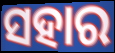
ସହାର